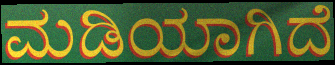
ಮಡಿಯಾಗಿದೆ